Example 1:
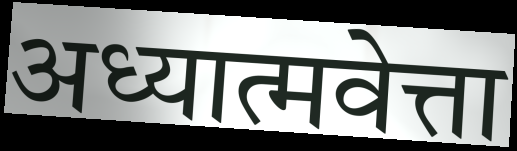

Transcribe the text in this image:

अध्यात्मवेत्ता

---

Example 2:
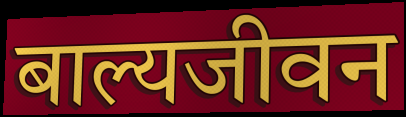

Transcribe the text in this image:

बाल्यजीवन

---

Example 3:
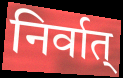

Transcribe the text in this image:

निर्वात्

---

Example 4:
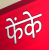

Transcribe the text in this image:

फेंके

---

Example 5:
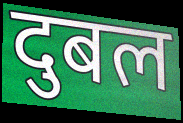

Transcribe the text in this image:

दुबल